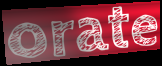
orate